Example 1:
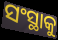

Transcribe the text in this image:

ସଂସ୍ଥାକୁ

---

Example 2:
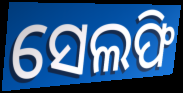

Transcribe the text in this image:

ସେଲଫି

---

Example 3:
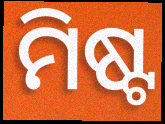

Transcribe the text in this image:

ମିଷ୍ଟ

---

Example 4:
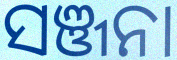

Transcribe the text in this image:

ସଞ୍ଜନା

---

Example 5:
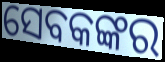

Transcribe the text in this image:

ସେବକଙ୍କର